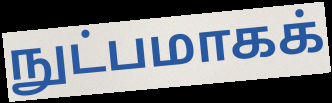
நுட்பமாகக்